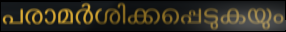
പരാമർശിക്കപ്പെടുകയും